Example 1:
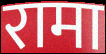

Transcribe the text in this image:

रामा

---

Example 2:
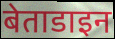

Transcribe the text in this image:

बेताडाइन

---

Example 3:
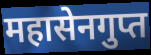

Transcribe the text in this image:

महासेनगुप्त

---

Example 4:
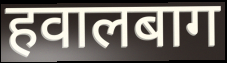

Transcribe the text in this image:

हवालबाग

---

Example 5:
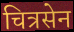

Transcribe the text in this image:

चित्रसेन